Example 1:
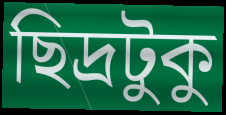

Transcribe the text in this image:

ছিদ্রটুকু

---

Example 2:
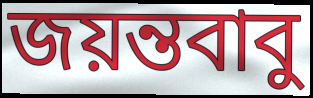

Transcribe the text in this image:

জয়ন্তবাবু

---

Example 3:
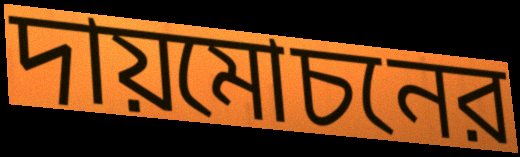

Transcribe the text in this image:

দায়মোচনের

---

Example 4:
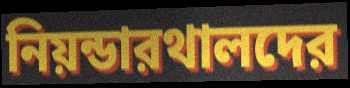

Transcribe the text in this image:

নিয়ন্ডারথালদের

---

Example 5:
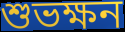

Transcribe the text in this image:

শুভক্ষন